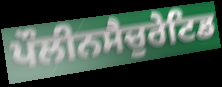
ਪੌਲੀਨਸੈਚੁਰੇਟਿਡ